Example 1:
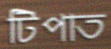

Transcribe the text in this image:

টিপাত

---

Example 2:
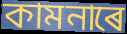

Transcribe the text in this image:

কামনাৰে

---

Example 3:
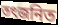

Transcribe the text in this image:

তৎজনিত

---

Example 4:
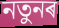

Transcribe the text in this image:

নতুনৰ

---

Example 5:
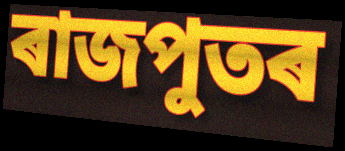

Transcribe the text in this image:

ৰাজপুতৰ